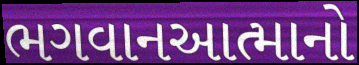
ભગવાનઆત્માનો